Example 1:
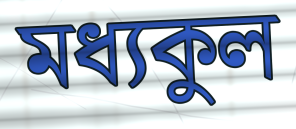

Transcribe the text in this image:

মধ্যকুল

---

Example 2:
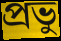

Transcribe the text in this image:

প্রভু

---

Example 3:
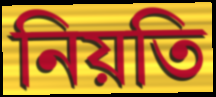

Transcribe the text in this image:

নিয়তি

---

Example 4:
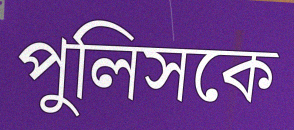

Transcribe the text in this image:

পুলিসকে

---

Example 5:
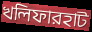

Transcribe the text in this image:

খলিফারহাট